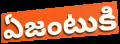
ఏజంటుకి